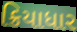
ક્રિયાધાર